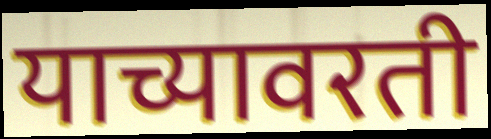
याच्यावरती